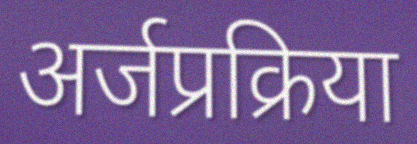
अर्जप्रक्रिया